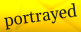
portrayed